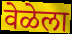
वेळेला